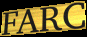
FARC